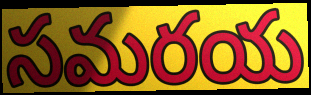
సమరయ